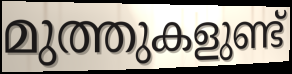
മുത്തുകളുണ്ട്